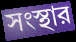
সংস্থার